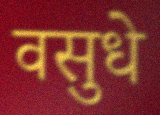
वसुधे